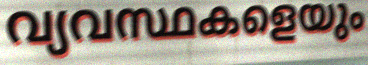
വ്യവസ്ഥകളെയും